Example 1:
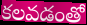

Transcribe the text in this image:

కలవడంతో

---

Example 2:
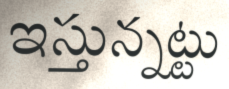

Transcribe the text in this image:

ఇస్తున్నట్టు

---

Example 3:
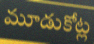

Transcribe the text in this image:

మూడుకోట్ల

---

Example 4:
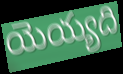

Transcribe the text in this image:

యెయ్యది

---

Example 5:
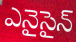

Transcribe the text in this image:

ఎనైసైన్